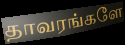
தாவரங்களே